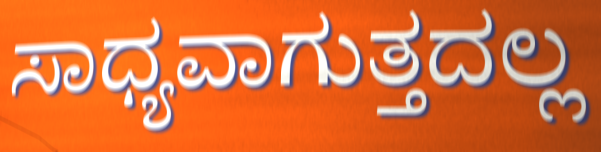
ಸಾಧ್ಯವಾಗುತ್ತದಲ್ಲ